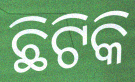
ଛିଟିକି